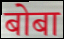
बोबा